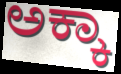
ಅಕ್ಕಾ